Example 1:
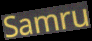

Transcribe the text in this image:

Samru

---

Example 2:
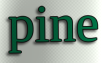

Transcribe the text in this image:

pine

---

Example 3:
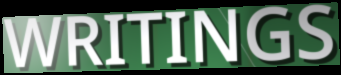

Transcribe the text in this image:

WRITINGS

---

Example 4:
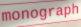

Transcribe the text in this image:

monograph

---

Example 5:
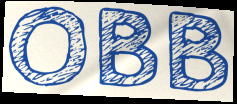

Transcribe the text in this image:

OBB